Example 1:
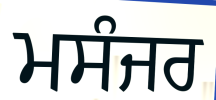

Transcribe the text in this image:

ਮਸੰਜਰ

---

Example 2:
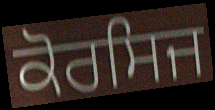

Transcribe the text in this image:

ਕੋਰਸਿਜ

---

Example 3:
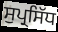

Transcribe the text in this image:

ਸੁਪ੍ਰਸਿੱਧ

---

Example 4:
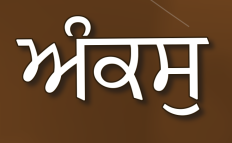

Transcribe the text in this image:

ਅੰਕਸੁ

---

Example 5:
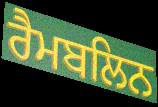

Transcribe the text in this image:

ਰੈਮਬਲਿਨ